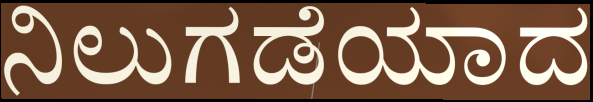
ನಿಲುಗಡೆಯಾದ